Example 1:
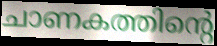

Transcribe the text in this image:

ചാണകത്തിന്റെ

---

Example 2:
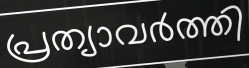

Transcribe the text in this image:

പ്രത്യാവർത്തി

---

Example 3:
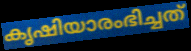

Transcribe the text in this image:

കൃഷിയാരംഭിച്ചത്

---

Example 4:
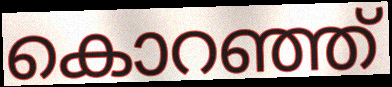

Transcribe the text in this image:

കൊറഞ്ഞ്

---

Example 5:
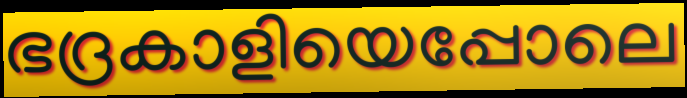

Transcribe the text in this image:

ഭദ്രകാളിയെപ്പോലെ